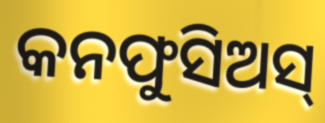
କନଫୁସିଅସ୍